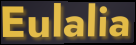
Eulalia